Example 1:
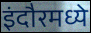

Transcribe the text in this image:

इंदौरमध्ये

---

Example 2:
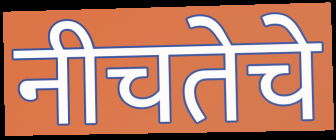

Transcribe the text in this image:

नीचतेचे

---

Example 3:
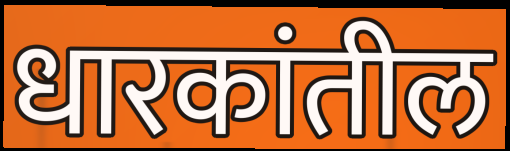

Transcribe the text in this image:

धारकांतील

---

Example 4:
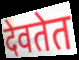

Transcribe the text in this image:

देवतेत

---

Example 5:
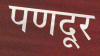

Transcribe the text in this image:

पणदूर